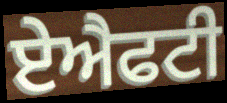
ਏਐਫਟੀ